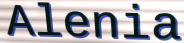
Alenia